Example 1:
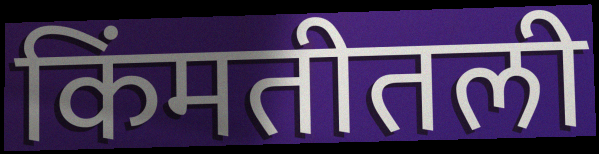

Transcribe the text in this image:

किंमतीतली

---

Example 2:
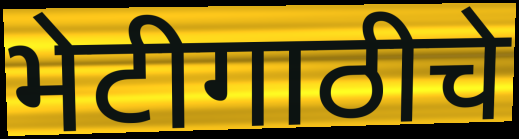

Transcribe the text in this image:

भेटीगाठीचे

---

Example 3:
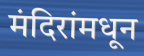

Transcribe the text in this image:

मंदिरांमधून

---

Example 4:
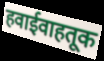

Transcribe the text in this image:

हवाईवाहतूक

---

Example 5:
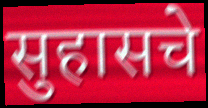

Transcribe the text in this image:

सुहासचे